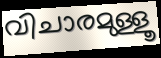
വിചാരമുള്ളൂ